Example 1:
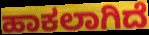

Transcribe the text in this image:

ಹಾಕಲಾಗಿದೆ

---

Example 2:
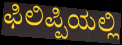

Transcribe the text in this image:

ಫಿಲಿಪ್ಪಿಯಲ್ಲಿ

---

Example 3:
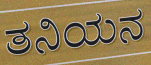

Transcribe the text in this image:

ತನಿಯನ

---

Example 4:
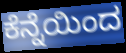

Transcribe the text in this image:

ಕೆನ್ನೆಯಿಂದ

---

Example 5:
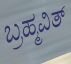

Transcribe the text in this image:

ಬ್ರಹ್ಮವಿತ್